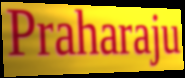
Praharaju